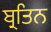
ਬ੍ਰਤਿਨ